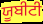
ਯੂਬੀਟੀ